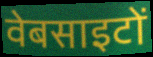
वेबसाइटों